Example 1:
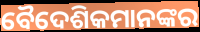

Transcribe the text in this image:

ବୈଦେଶିକମାନଙ୍କର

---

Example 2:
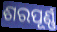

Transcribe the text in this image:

ଶରପୂର୍ଣ୍ଣ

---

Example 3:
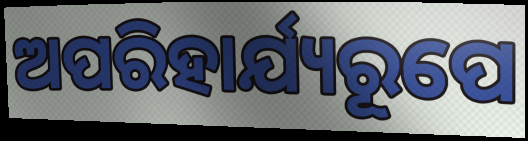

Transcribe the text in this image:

ଅପରିହାର୍ଯ୍ୟରୂପେ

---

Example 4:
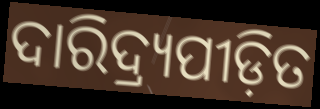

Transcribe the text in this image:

ଦାରିଦ୍ର୍ୟପୀଡ଼ିତ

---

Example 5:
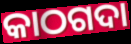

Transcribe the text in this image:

କାଠଗଦା